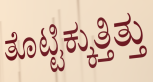
ತೊಟ್ಟಿಕ್ಕುತ್ತಿತ್ತು